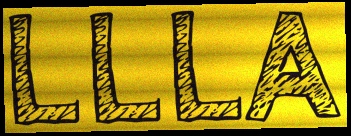
LLLA